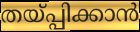
തയ്പ്പിക്കാൻ